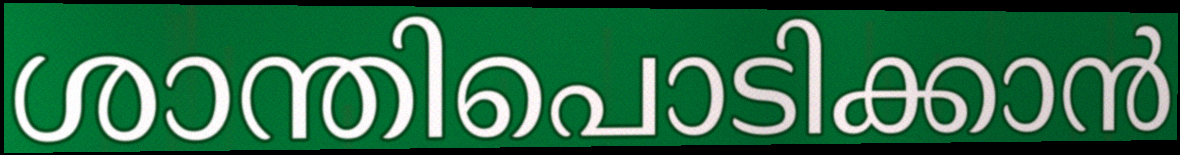
ശാന്തിപൊടിക്കാൻ